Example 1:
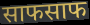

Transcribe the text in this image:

साफसाफ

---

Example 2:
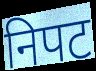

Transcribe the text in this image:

निपट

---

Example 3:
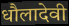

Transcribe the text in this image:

धौलादेवी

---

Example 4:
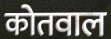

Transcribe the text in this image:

कोतवाल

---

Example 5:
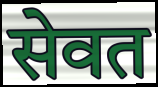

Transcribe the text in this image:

सेवत